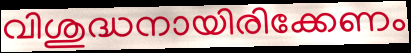
വിശുദ്ധനായിരിക്കേണം